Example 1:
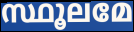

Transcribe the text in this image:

സ്ഥൂലമേ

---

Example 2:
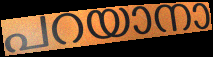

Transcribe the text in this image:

പറയാനാ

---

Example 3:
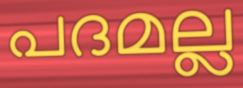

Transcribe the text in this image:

പദമല്ല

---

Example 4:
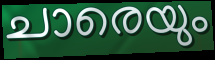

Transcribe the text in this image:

ചാരെയും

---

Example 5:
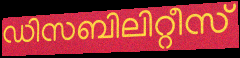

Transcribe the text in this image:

ഡിസബിലിറ്റീസ്